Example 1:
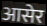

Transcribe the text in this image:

आसेर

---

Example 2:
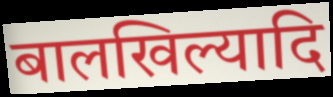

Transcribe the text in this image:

बालखिल्यादि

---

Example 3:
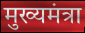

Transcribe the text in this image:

मुख्यमंत्रा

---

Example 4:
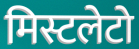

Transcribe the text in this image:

मिस्टलेटो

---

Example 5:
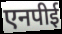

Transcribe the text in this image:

एनपीई